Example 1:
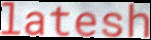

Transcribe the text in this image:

latesh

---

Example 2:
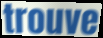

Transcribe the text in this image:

trouve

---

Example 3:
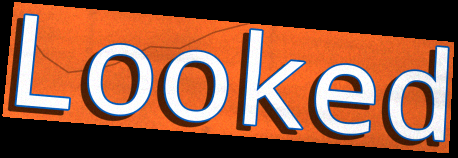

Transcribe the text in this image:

Looked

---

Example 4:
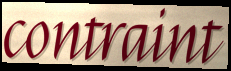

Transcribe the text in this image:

contraint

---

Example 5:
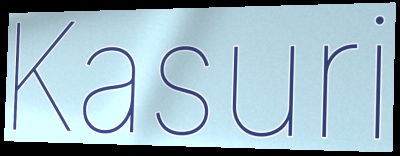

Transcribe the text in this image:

Kasuri